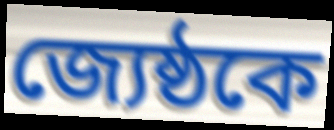
জ্যেষ্ঠকে